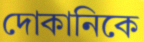
দোকানিকে